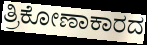
ತ್ರಿಕೋಣಾಕಾರದ